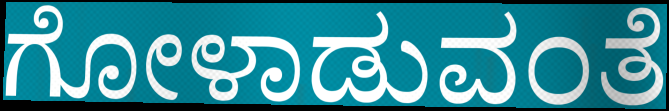
ಗೋಳಾಡುವಂತೆ